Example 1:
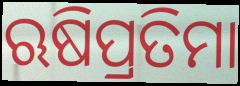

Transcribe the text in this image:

ଋଷିପ୍ରତିମା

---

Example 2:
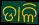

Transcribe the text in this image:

ଡାଳି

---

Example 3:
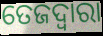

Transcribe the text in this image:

ତେଜଦ୍ୱାରା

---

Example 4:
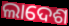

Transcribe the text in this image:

ଲାଦେଶ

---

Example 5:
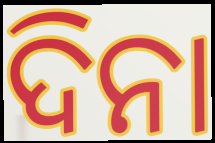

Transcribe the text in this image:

ଦିନା